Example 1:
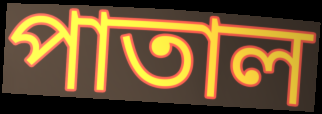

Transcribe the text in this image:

পাতাল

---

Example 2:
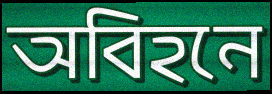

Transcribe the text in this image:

অবিহনে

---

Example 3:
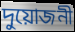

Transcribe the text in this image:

দুয়োজনী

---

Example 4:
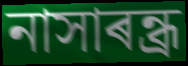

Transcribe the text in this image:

নাসাৰন্ধ্ৰ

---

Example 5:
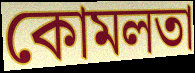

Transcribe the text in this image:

কোমলতা